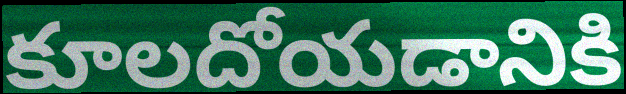
కూలదోయడానికి